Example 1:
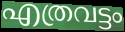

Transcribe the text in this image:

എത്രവട്ടം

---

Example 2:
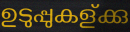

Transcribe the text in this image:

ഉടുപ്പുകള്ക്കു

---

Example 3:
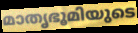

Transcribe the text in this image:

മാതൃഭൂമിയുടെ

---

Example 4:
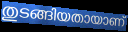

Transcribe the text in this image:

തുടങ്ങിയതായാണ്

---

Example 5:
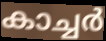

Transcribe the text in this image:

കാച്ചർ